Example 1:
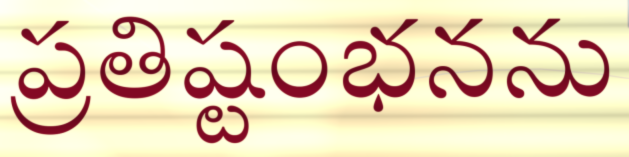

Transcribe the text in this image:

ప్రతిష్టంభనను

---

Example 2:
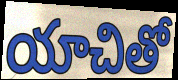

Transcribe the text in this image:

యాచితో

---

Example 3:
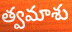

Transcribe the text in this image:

త్వమాశు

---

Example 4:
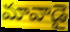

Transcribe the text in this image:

మావాడై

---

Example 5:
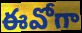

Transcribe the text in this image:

ఈవోగా